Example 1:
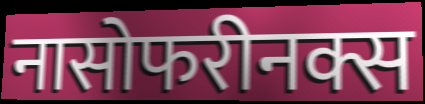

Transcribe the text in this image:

नासोफरीनक्स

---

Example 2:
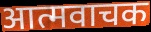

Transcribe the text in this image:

आत्मवाचक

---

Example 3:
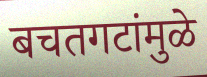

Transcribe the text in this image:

बचतगटांमुळे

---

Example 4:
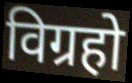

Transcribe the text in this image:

विग्रहो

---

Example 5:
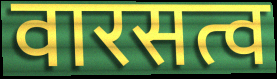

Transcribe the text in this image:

वारसत्व